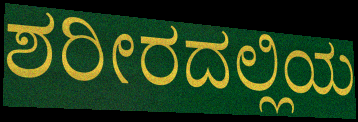
ಶರೀರದಲ್ಲಿಯ